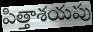
పిత్తాశయపు